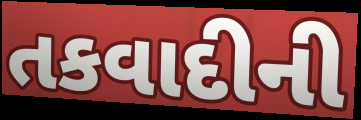
તકવાદીની